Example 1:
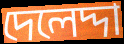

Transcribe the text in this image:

দেলেদ্দা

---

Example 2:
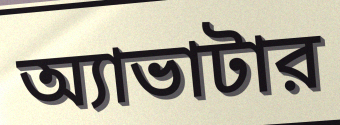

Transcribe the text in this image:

অ্যাভাটার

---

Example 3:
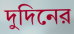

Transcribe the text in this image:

দুদিনের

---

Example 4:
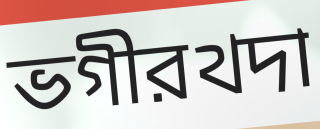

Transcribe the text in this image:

ভগীরথদা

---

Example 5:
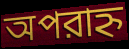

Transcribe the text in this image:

অপরাহ্ন